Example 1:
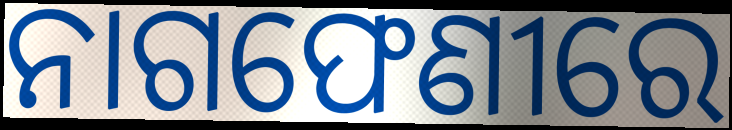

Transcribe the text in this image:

ନାଗଫେଣୀରେ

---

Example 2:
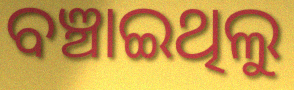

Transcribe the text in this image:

ବଞ୍ଚାଇଥିଲୁ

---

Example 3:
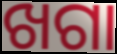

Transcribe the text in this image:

ଖଗା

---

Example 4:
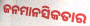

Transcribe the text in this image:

ଜନମାନସିକତାର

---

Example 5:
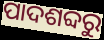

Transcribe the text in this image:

ପାଦଶବ୍ଦରୁ